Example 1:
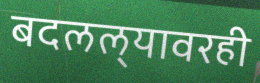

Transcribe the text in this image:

बदलल्यावरही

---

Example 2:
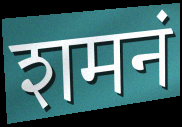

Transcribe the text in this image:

शमनं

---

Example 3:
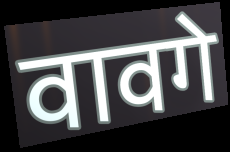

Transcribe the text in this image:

वावगे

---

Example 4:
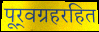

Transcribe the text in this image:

पूर्वग्रहरहित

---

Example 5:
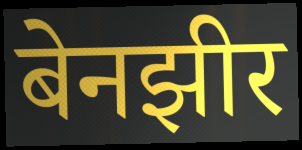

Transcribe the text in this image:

बेनझीर